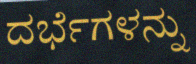
ದರ್ಭೆಗಳನ್ನು